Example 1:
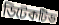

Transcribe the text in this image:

ডিটেকটিভ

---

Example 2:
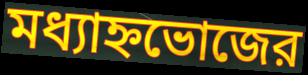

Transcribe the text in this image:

মধ্যাহ্নভোজের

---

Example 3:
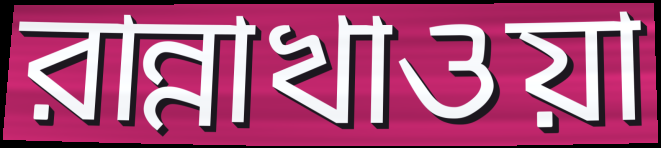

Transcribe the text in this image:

রান্নাখাওয়া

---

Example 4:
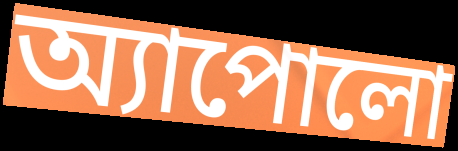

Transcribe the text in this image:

অ্যাপোলো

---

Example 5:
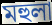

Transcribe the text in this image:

মহুলা